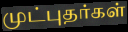
முட்புதர்கள்